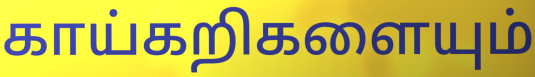
காய்கறிகளையும்